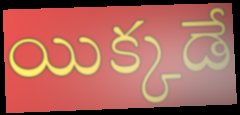
యిక్కడే